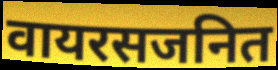
वायरसजनित